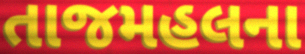
તાજમહલના